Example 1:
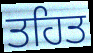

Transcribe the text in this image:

ਤਹਿਤ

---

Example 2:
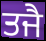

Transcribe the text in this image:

ਤਜੈ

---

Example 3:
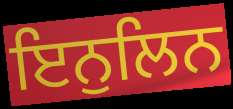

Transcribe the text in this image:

ਇਨੁਲਿਨ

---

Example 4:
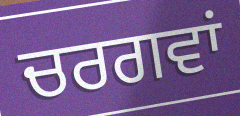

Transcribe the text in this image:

ਚਰਗਵਾਂ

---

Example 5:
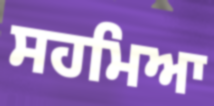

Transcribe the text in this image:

ਸਹਮਿਆ